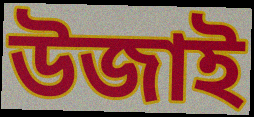
উজাই